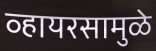
व्हायरसामुळे